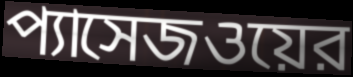
প্যাসেজওয়ের